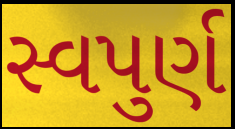
સ્વપુર્ણ